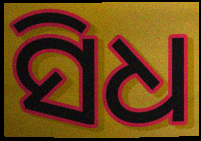
ସିଧ